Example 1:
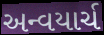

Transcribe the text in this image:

અન્વયાર્ચ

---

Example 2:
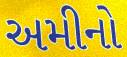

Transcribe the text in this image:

અમીનો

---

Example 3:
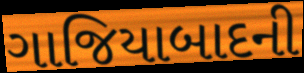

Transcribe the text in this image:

ગાજિયાબાદની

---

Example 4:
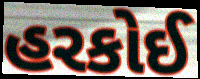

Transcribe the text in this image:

હરકોઈ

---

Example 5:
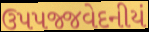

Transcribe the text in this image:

ઉપપજ્જવેદનીયં